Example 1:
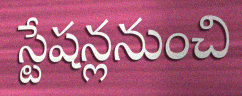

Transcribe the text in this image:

స్టేషన్లనుంచి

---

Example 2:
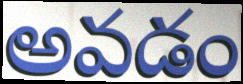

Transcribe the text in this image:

అవడం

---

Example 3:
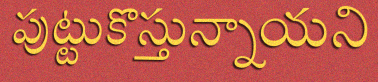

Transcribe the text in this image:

పుట్టుకొస్తున్నాయని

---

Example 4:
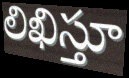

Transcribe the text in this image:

లిఖిస్తూ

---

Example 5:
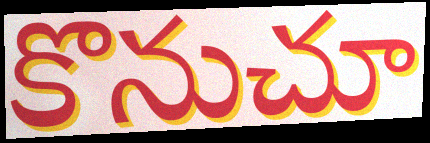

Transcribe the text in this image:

కొనుచూ